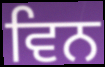
ਵਿਨ